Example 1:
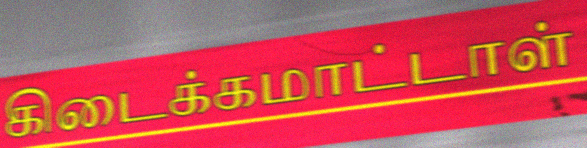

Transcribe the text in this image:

கிடைக்கமாட்டாள்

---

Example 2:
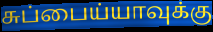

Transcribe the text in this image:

சுப்பைய்யாவுக்கு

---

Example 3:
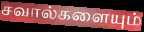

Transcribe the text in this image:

சவால்களையும்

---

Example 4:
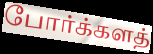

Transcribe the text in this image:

போர்க்களத்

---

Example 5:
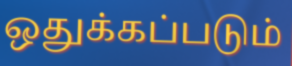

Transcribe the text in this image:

ஒதுக்கப்படும்